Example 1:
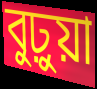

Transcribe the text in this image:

বুঢ়ুয়া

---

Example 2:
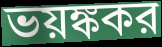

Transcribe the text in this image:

ভয়ঙ্ককর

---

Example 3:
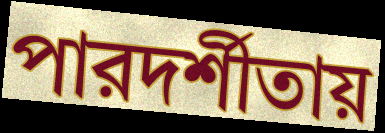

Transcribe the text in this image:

পারদর্শীতায়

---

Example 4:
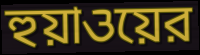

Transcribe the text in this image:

হুয়াওয়ের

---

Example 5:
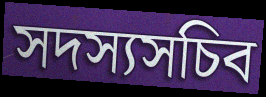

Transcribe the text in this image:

সদস্যসচিব